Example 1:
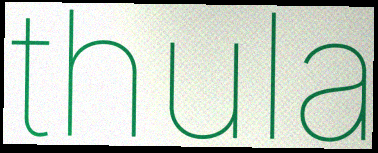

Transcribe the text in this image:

thula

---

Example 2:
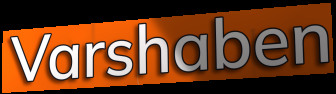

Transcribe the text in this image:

Varshaben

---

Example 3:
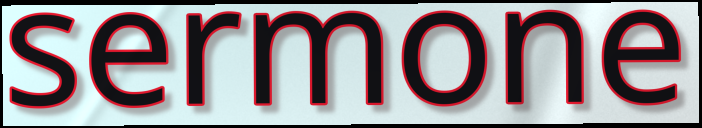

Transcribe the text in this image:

sermone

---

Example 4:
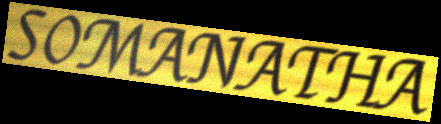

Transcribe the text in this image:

SOMANATHA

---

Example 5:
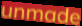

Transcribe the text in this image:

unmade